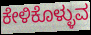
ಕೇಳಿಕೊಳ್ಳುವ